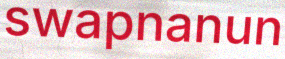
swapnanun